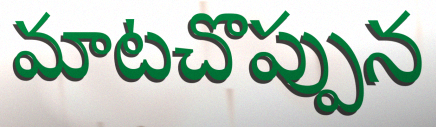
మాటచొప్పున